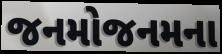
જનમોજનમના